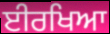
ਈਰਖਿਆ